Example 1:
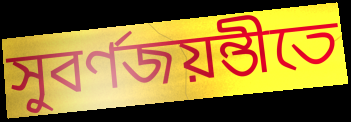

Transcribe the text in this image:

সুবর্ণজয়ন্তীতে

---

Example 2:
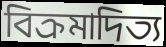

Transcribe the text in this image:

বিক্রমাদিত্য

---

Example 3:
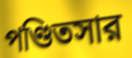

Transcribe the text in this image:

পণ্ডিতসার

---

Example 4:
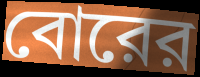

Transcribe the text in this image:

বোরের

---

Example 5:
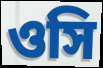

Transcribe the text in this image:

ওসি